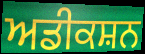
ਅਡੀਕਸ਼ਨ